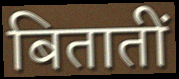
बितातीं